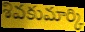
శివకుమార్కి